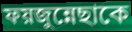
ফয়জুন্নেছাকে